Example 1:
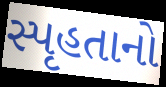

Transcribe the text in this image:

સ્પૃહતાનો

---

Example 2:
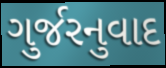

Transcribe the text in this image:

ગુર્જરનુવાદ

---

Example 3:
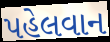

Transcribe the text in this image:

પહેલવાન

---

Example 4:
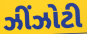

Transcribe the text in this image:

ઝીંઝોટી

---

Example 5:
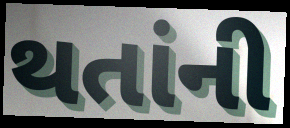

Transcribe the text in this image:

થતાંની